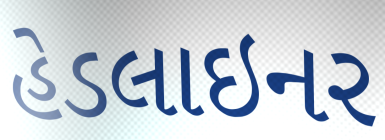
હેડલાઇનર